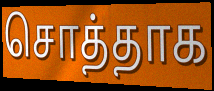
சொத்தாக